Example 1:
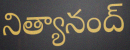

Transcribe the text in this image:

నిత్యానంద్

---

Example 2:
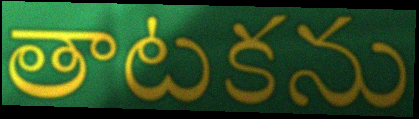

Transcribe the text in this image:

తాటకను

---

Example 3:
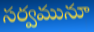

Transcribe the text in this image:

సర్వమునూ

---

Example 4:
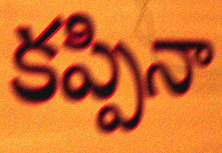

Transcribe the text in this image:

కప్పినా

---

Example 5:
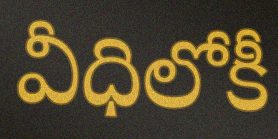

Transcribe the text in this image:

వీధిలోకీ